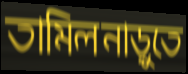
তামিলনাড়ুতে